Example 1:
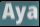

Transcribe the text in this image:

Aya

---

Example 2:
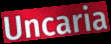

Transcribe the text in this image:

Uncaria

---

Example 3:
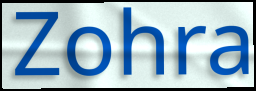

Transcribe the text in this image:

Zohra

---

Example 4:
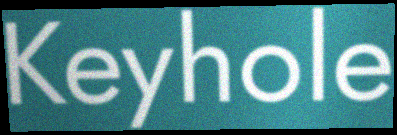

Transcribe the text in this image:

Keyhole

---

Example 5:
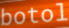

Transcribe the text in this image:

botol